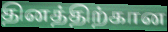
தினத்திற்கான